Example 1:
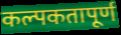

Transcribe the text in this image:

कल्पकतापूर्ण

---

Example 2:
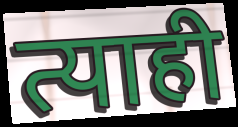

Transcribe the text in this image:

त्याही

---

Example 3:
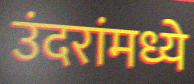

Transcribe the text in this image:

उंदरांमध्ये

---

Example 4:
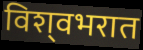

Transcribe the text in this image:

विश्वभरात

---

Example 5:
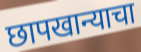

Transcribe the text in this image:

छापखान्याचा